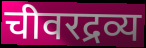
चीवरद्रव्य